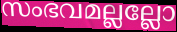
സംഭവമല്ലല്ലോ